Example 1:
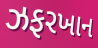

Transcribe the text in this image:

ઝફરખાન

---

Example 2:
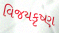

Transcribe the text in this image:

વિજયકૃષ્ણ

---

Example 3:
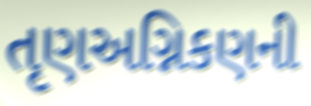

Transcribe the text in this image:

તૃણઅગ્નિકણની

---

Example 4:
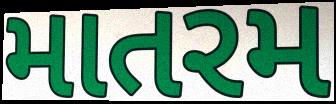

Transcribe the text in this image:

માતરમ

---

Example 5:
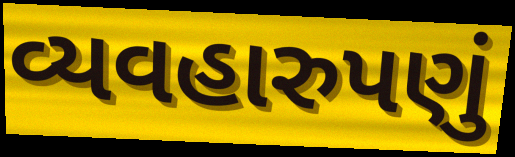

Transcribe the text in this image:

વ્યવહારુપણું